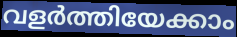
വളർത്തിയേക്കാം